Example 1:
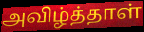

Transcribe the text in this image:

அவிழ்த்தாள்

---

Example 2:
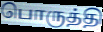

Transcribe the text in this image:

பொருத்தி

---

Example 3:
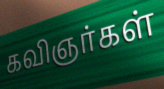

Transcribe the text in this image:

கவிஞர்கள்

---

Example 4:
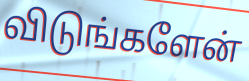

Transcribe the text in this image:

விடுங்களேன்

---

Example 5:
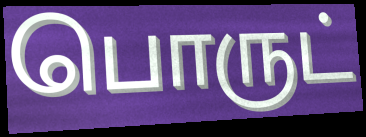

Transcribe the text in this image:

பொருட்